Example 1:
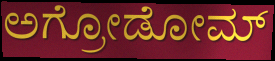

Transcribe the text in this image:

ಅಗ್ರೋಡೋಮ್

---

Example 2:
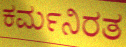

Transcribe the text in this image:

ಕರ್ಮನಿರತ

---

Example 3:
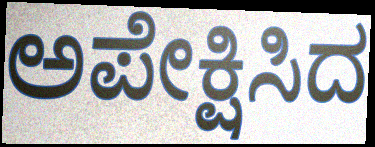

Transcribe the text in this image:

ಅಪೇಕ್ಷಿಸಿದ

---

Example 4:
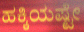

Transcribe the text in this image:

ಹಕ್ಕಿಯಷ್ಟೇ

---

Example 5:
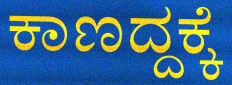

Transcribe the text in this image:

ಕಾಣದ್ದಕ್ಕೆ